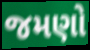
જમણો